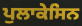
ਪੁਲਾਕੇਸਿਨ